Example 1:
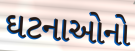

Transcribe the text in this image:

ઘટનાઓનો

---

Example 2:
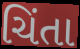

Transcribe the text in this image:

ચિંતા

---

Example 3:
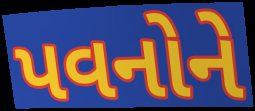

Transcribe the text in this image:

પવનોને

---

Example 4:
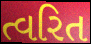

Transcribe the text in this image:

ત્વરિત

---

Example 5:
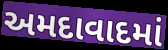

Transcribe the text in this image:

અમદાવાદમાં